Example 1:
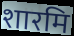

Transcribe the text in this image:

शारमि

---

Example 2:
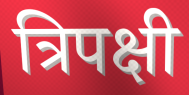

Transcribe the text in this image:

त्रिपक्षी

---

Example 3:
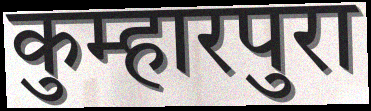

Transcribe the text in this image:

कुम्हारपुरा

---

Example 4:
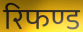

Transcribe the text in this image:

रिफण्ड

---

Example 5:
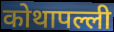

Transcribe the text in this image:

कोथापल्ली